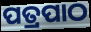
ପତ୍ରପାଠ